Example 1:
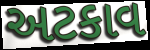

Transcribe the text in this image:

અટકાવ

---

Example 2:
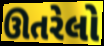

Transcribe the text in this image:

ઊતરેલો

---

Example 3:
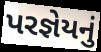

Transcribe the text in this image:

પરજ્ઞેયનું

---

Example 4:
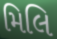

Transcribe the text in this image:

મિલિ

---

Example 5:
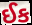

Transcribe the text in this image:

ઈક